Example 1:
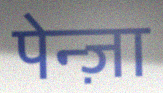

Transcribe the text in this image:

पेन्ज़ा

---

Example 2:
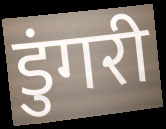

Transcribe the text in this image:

डुंगरी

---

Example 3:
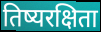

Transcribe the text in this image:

तिष्यरक्षिता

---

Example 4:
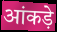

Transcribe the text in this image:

आंकड़े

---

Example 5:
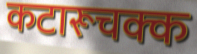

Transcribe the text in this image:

कटारूचक्क